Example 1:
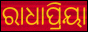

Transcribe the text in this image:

ରାଧାପ୍ରିୟା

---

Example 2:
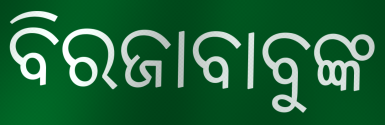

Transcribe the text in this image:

ବିରଜାବାବୁଙ୍କ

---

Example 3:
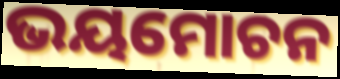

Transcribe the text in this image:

ଭୟମୋଚନ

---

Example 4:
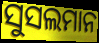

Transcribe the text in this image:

ସୁସଲମାନ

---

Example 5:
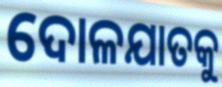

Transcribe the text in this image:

ଦୋଳଯାତକୁ